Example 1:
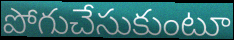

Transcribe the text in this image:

పోగుచేసుకుంటూ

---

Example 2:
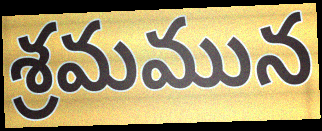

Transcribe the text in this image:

శ్రమమున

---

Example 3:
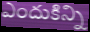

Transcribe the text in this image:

ఎందుకిన్ని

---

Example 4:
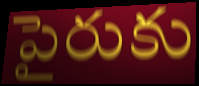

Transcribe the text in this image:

పైరుకు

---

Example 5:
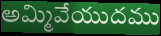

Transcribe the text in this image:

అమ్మివేయుదము